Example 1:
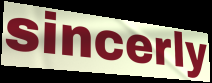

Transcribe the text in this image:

sincerly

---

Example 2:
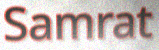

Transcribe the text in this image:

Samrat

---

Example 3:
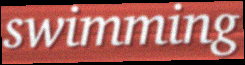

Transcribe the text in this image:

swimming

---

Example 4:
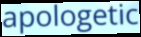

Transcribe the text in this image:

apologetic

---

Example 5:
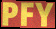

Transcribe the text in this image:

PFY